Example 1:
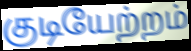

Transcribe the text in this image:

குடியேற்றம்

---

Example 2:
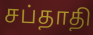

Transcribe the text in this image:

சப்தாதி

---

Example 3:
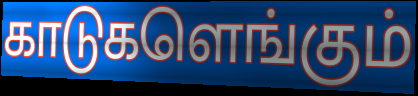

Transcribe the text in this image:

காடுகளெங்கும்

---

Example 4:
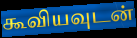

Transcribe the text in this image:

கூவியவுடன்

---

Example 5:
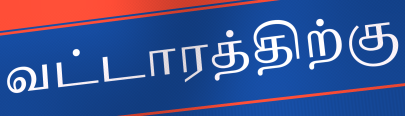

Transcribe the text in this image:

வட்டாரத்திற்கு